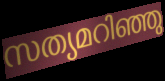
സത്യമറിഞ്ഞു